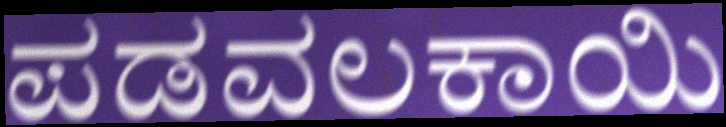
ಪಡವಲಕಾಯಿ